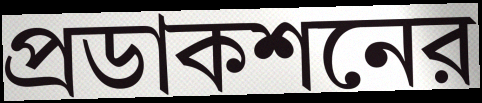
প্রডাকশনের